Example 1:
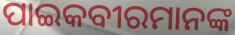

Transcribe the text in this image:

ପାଇକବୀରମାନଙ୍କ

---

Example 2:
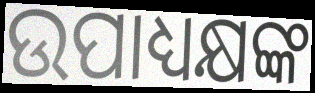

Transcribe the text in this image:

ଉପାଧ୍ୟକ୍ଷଙ୍କ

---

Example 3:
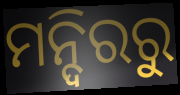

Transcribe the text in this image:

ମନ୍ଦିରରୁ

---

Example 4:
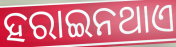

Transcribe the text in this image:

ହରାଇନଥାଏ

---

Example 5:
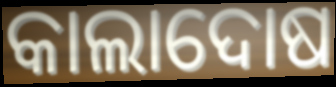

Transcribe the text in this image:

କାଲାଦୋଷ